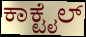
ಕಾಕ್ಟೈಲ್